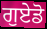
ਗੁਏਡੋ